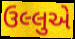
ઉલ્લુએ